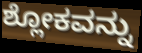
ಶ್ಲೋಕವನ್ನು